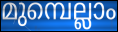
മുമ്പെല്ലാം